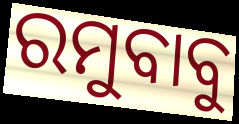
ରମୁବାବୁ